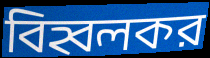
বিহ্বলকর